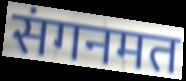
संगनमत